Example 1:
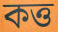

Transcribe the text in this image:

কত্ত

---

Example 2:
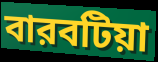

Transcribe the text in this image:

বারবটিয়া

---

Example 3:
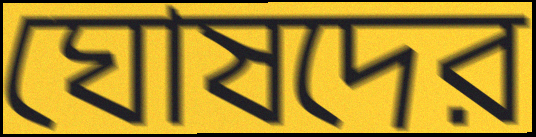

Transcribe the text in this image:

ঘোষদের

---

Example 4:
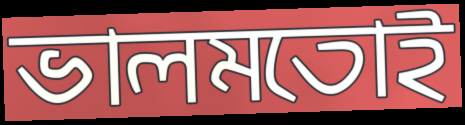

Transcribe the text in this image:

ভালমতোই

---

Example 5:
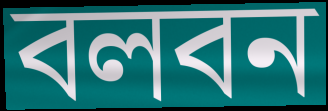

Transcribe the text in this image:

বলবন